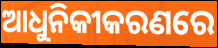
ଆଧୁନିକୀକରଣରେ